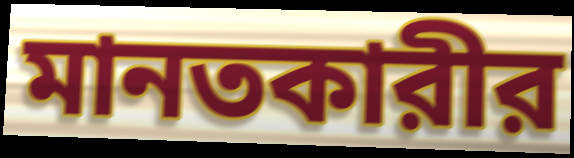
মানতকারীর